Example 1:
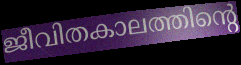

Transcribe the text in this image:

ജീവിതകാലത്തിന്റെ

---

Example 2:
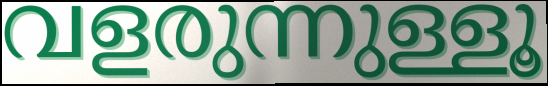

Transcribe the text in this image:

വളരുന്നുള്ളൂ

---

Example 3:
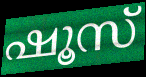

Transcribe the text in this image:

ഷൂസ്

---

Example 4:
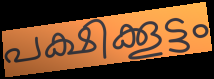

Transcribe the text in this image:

പക്ഷിക്കൂട്ടം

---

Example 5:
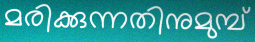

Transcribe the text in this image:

മരിക്കുന്നതിനുമുമ്പ്